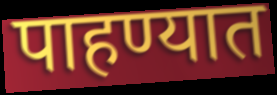
पाहण्यात